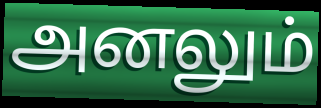
அனலும்